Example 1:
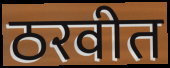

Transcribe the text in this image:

ठरवीत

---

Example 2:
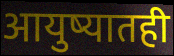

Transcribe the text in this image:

आयुष्यातही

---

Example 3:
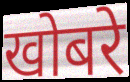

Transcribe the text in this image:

खोबरे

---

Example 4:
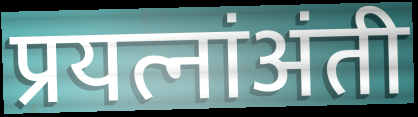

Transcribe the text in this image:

प्रयत्नांअंती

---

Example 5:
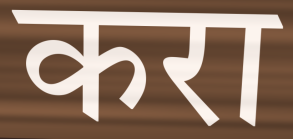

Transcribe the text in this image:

करा